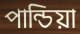
পান্ডিয়া